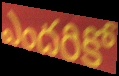
ఎందరికో